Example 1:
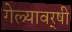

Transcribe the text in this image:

गेल्यावर्षी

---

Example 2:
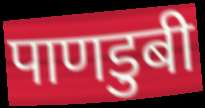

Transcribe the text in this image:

पाणडुबी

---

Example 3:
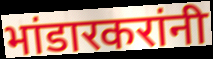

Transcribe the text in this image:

भांडारकरांनी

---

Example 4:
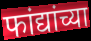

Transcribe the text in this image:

फांद्यांच्या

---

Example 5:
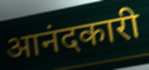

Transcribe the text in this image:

आनंदकारी